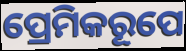
ପ୍ରେମିକରୂପେ